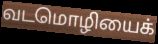
வடமொழியைக்